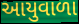
આયુવાળા